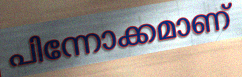
പിന്നോക്കമാണ്